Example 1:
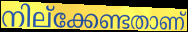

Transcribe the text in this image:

നില്ക്കേണ്ടതാണ്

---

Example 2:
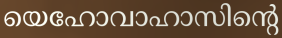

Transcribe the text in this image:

യെഹോവാഹാസിന്റെ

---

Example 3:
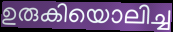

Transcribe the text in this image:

ഉരുകിയൊലിച്ച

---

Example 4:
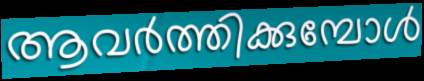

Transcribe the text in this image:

ആവർത്തിക്കുമ്പോൾ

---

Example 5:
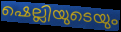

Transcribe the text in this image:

ഷെല്ലിയുടെയും